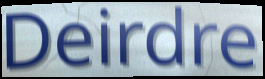
Deirdre